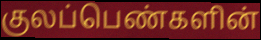
குலப்பெண்களின்